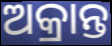
ଅକ୍ରାନ୍ତ